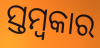
ସ୍ତମ୍ବକାର